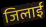
जिलाई